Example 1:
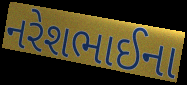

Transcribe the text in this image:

નરેશભાઈના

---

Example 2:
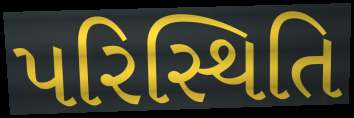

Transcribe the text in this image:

પરિસ્થિતિ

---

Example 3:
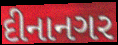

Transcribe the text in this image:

દીનાનગર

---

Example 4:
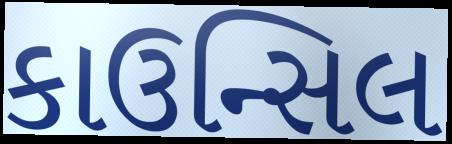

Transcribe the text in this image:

કાઉન્સિલ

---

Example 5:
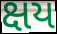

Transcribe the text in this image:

ક્ષય